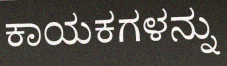
ಕಾಯಕಗಳನ್ನು